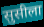
सुसीला